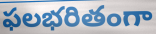
ఫలభరితంగా